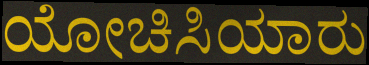
ಯೋಚಿಸಿಯಾರು